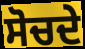
ਸੋਚਦੇ